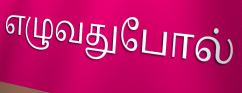
எழுவதுபோல்